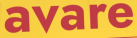
avare